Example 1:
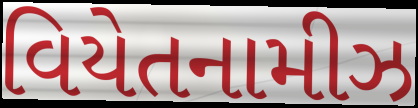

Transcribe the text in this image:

વિયેતનામીઝ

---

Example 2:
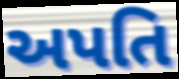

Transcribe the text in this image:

અપતિ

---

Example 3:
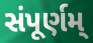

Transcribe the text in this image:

સંપૂર્ણમ્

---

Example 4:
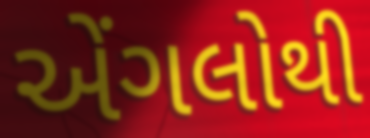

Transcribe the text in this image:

એંગલોથી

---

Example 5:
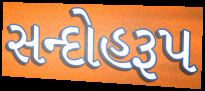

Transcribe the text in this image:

સન્દોહરૂપ